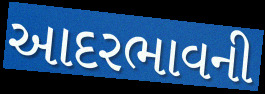
આદરભાવની